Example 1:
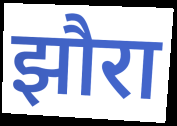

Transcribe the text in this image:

झौरा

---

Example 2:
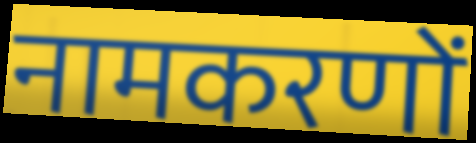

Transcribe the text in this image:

नामकरणों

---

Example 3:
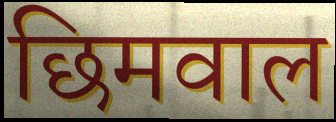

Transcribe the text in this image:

छिमवाल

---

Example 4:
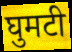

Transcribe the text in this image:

घुमटी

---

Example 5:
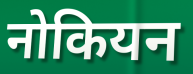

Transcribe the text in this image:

नोकियन